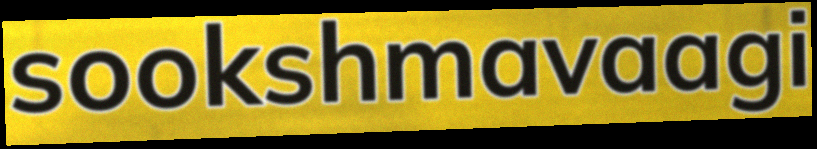
sookshmavaagi